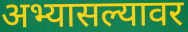
अभ्यासल्यावर